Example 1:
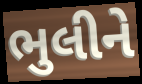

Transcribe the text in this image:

ભુલીને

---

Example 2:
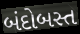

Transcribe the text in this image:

બંદોબસ્ત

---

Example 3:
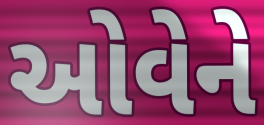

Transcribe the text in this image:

ઓવેને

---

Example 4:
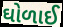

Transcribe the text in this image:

ઘોળાઈ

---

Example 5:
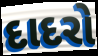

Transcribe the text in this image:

દાદરો